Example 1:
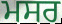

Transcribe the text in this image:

ਮਸਰ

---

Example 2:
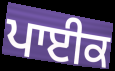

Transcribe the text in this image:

ਪਾਈਕ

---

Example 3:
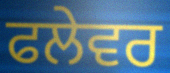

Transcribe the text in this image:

ਫਲੇਵਰ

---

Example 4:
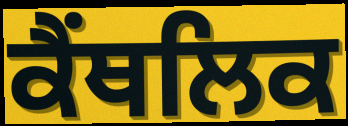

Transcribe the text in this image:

ਕੈਂਥਲਿਕ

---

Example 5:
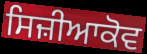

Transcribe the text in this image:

ਸਿਜ਼ੀਆਕੋਵ